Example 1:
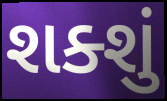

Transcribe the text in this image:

શક્શું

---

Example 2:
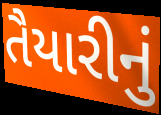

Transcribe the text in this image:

તૈયારીનું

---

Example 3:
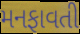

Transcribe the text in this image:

મનફાવતી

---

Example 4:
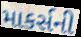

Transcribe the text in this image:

માકર્સની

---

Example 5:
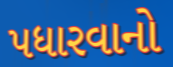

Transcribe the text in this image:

પધારવાનો